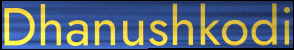
Dhanushkodi